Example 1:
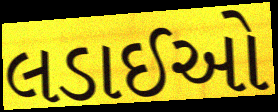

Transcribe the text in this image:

લડાઈઓ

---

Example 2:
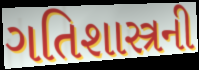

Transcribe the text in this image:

ગતિશાસ્ત્રની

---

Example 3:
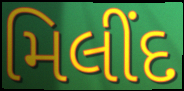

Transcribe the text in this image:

મિલીંદ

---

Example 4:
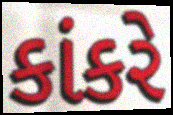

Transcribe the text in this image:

કાંકરે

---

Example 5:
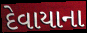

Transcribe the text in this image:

દેવાયાના